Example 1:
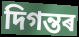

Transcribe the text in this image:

দিগন্তৰ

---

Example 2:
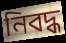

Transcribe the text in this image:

নিবদ্ধ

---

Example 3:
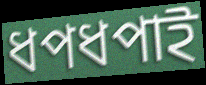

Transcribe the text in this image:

ধপধপাই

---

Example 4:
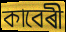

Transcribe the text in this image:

কাবেৰী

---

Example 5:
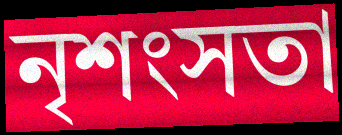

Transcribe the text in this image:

নৃশংসতা